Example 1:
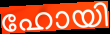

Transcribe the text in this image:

ഹോയി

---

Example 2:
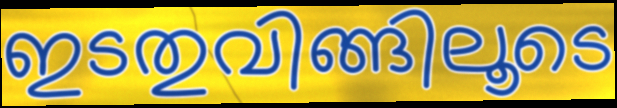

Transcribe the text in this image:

ഇടതുവിങ്ങിലൂടെ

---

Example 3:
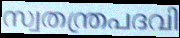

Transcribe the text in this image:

സ്വതന്ത്രപദവി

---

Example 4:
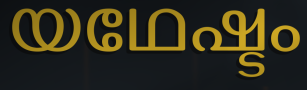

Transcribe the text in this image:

യഥേഷ്ടം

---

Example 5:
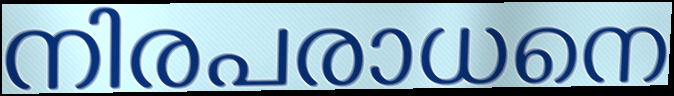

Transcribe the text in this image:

നിരപരാധനെ